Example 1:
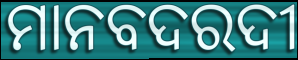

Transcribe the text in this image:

ମାନବଦରଦୀ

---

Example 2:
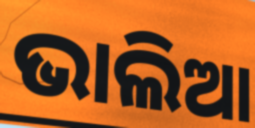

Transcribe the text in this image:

ଭାଲିଆ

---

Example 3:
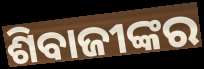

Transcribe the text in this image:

ଶିବାଜୀଙ୍କର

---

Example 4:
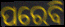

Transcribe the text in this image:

ପରେବି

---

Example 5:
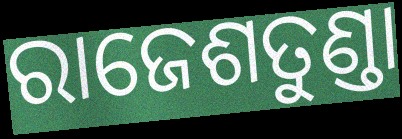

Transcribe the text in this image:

ରାଜେଶତୁଣ୍ଡା